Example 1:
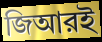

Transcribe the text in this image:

জিআরই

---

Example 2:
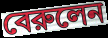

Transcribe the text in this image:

বেরুলেন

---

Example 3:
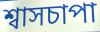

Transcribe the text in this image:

শ্বাসচাপা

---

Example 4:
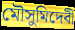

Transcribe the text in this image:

মৌসুমিদেবী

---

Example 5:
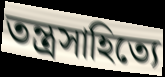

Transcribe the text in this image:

তন্ত্রসাহিত্যে